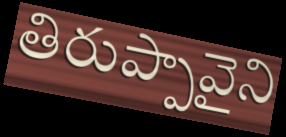
తిరుప్పావైని